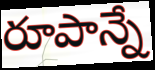
రూపాన్నే